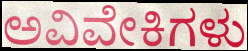
ಅವಿವೇಕಿಗಳು